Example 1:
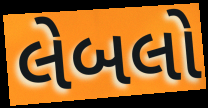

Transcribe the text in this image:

લેબલો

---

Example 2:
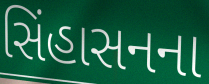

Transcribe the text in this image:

સિંહાસનના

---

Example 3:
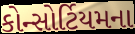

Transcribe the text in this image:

કોન્સોર્ટિયમના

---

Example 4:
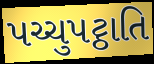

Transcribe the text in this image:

પચ્ચુપટ્ઠાતિ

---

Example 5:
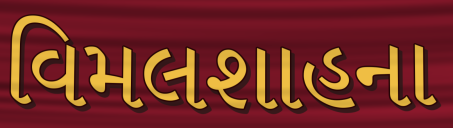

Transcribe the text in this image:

વિમલશાહના